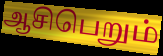
ஆசிபெறும்